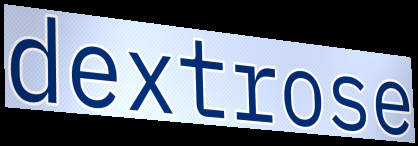
dextrose